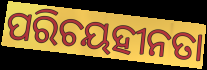
ପରିଚୟହୀନତା